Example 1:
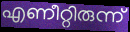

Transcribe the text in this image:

എണീറ്റിരുന്ന്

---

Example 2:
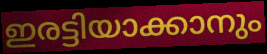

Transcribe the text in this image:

ഇരട്ടിയാക്കാനും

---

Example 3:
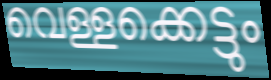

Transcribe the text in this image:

വെള്ളക്കെട്ടും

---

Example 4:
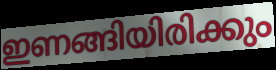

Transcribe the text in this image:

ഇണങ്ങിയിരിക്കും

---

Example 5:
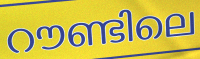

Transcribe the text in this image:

റൗണ്ടിലെ